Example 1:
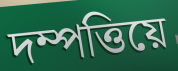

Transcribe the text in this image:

দম্পত্তিয়ে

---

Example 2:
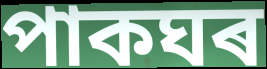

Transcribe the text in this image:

পাকঘৰ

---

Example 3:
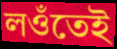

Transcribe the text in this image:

লওঁতেই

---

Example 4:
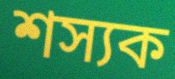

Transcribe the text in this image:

শস্যক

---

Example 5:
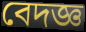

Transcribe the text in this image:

বেদজ্ঞ